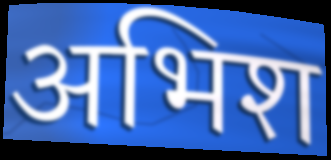
अभिश